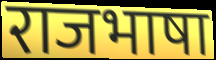
राजभाषा